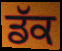
ਡੱਕ